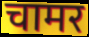
चामर